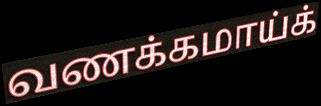
வணக்கமாய்க்